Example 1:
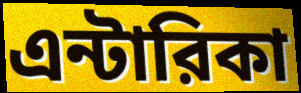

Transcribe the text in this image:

এন্টারিকা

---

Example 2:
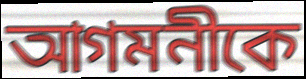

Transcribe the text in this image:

আগমনীকে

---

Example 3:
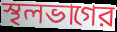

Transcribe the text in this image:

স্থলভাগের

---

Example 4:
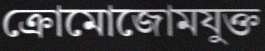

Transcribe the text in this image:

ক্রোমোজোমযুক্ত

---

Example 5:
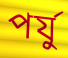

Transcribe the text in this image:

পর্যু